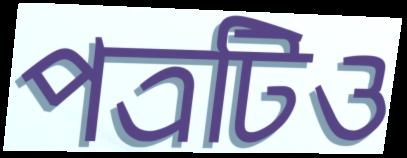
পত্রটিও